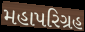
મહાપરિગ્રહ